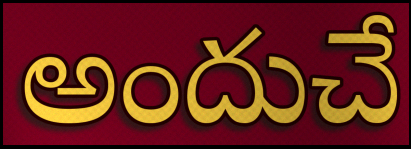
అందుచే